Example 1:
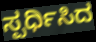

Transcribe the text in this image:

ಸ್ಪರ್ಧಿಸಿದ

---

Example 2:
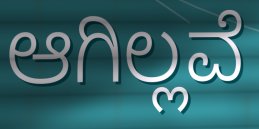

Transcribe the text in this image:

ಆಗಿಲ್ಲವೆ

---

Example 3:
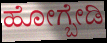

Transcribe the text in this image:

ಹೋಗ್ಬೇಡಿ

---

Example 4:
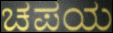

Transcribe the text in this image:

ಚಪಯ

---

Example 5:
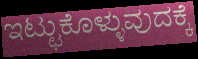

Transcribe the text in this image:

ಇಟ್ಟುಕೊಳ್ಳುವುದಕ್ಕೆ